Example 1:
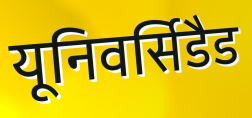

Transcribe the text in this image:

यूनिवर्सिडैड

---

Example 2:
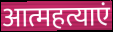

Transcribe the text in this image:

आत्महत्याएं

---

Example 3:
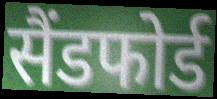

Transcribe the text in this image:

सैंडफोर्ड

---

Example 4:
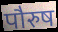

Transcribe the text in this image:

पौरुष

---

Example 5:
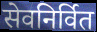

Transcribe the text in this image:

सेवनिर्वित